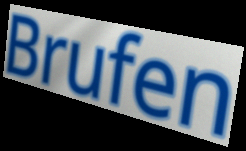
Brufen